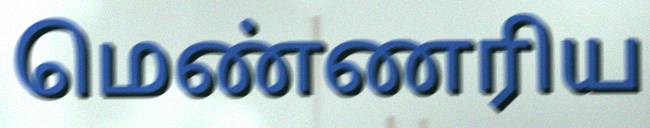
மெண்ணரிய